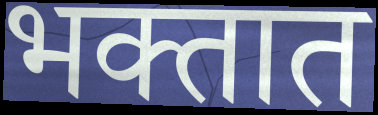
भक्तात